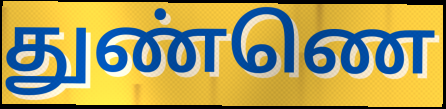
துண்ணெ